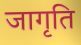
जागृति